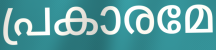
പ്രകാരമേ